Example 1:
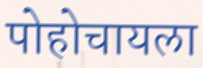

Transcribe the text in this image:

पोहोचायला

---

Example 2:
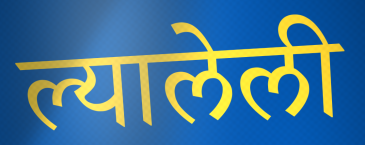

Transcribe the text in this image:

ल्यालेली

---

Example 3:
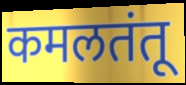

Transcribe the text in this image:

कमलतंतू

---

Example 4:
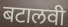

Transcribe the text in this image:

बटालवी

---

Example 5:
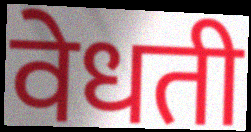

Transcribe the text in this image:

वेधती